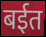
बईत